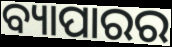
ବ୍ୟାପାରର